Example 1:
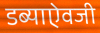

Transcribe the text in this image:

डब्याऐवजी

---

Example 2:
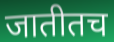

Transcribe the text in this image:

जातीतच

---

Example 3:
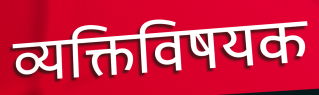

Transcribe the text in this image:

व्यक्तिविषयक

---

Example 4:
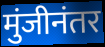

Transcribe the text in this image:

मुंजीनंतर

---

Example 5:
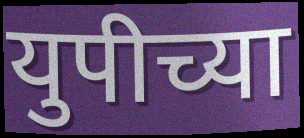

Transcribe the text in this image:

युपीच्या